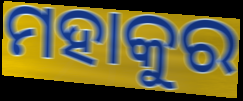
ମହାକୁର